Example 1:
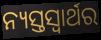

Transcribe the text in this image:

ନ୍ୟସ୍ତସ୍ଵାର୍ଥର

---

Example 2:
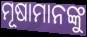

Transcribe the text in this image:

ମୂଷାମାନଙ୍କୁ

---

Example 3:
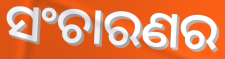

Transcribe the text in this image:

ସଂଚାରଣର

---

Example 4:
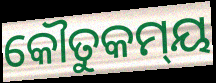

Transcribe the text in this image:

କୌତୁକମ୍‍ୟ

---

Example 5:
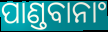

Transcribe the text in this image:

ପାଣ୍ଡବାନାଂ